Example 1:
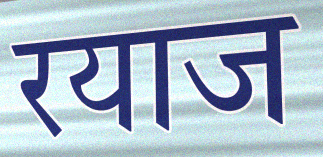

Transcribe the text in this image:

रयाज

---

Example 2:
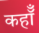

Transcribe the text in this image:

कहॉँ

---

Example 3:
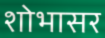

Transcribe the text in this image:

शोभासर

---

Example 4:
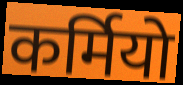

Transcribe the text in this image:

कर्मियो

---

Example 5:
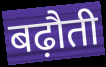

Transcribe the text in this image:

बढ़ौती